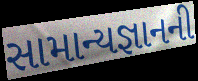
સામાન્યજ્ઞાનની